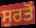
ਸੁਰਤੋਂ